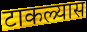
टाकल्यास